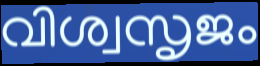
വിശ്വസൃജം